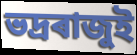
ভদ্ৰৰাজুই